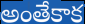
అంతేకాక